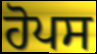
ਹੋਪਸ